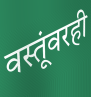
वस्तूंवरही